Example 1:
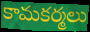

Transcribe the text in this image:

కామకర్మలు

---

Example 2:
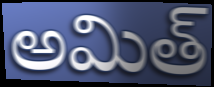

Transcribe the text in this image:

అమిత్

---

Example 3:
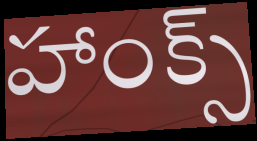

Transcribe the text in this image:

హాంక్స్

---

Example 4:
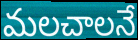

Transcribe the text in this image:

మలచాలనే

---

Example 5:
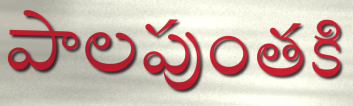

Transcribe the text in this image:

పాలపుంతకి